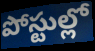
పోస్టుల్లో